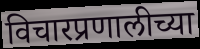
विचारप्रणालीच्या